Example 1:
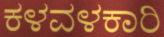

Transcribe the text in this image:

ಕಳವಳಕಾರಿ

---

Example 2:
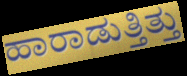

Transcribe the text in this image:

ಹಾರಾಡುತ್ತಿತ್ತು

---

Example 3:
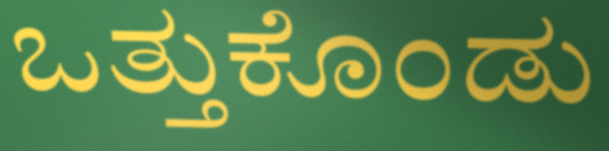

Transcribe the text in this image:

ಒತ್ತುಕೊಂಡು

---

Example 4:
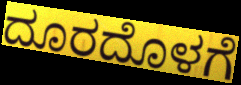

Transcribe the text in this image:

ದೂರದೊಳಗೆ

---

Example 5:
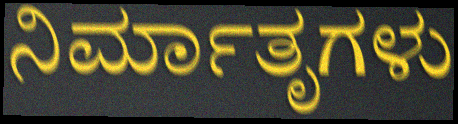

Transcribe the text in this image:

ನಿರ್ಮಾತೃಗಳು